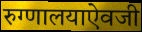
रुग्णालयाऐवजी